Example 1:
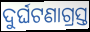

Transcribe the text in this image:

ଦୁର୍ଘଟଣାଗ୍ରସ୍ତ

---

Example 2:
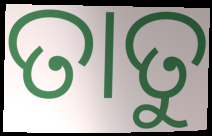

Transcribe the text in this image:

ତାତୁ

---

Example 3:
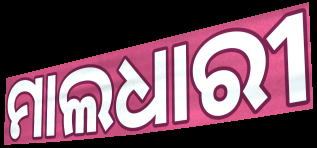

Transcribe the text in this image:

ମାଲଧାରୀ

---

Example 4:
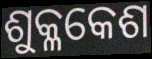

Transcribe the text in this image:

ଶୁକ୍ଳକେଶ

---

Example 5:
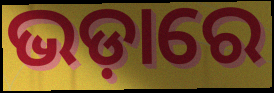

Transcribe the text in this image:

ଭଡ଼ାରେ